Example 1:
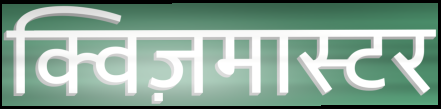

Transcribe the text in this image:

क्विज़मास्टर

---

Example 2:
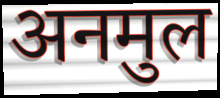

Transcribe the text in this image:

अनमुल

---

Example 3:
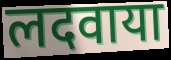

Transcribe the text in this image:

लदवाया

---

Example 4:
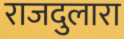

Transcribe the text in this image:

राजदुलारा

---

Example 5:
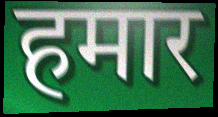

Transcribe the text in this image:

हमार